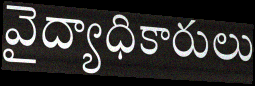
వైద్యాధికారులు